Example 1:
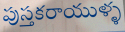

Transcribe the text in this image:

పుస్తకరాయుళ్ళ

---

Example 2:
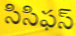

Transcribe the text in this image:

సిసిఫస్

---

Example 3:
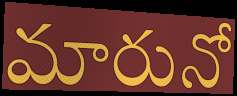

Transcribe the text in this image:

మారునో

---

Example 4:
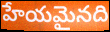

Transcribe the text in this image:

హేయమైనది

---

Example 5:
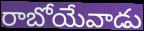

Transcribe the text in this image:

రాబోయేవాడు